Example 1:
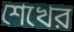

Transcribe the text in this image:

শেখের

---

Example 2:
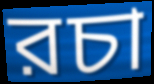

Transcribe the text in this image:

রচা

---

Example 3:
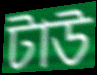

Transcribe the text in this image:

টাউ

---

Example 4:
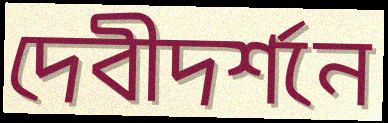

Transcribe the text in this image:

দেবীদর্শনে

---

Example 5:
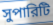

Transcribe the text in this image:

সুপারিটি